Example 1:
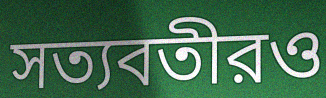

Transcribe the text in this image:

সত্যবতীরও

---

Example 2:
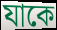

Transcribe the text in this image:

যাকে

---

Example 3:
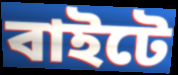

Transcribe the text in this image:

বাইটে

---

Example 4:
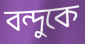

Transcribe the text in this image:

বন্দুকে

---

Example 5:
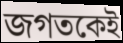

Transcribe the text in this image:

জগতকেই